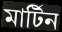
মাৰ্টিন